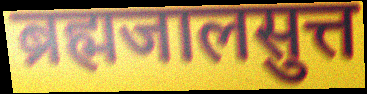
ब्रह्मजालसुत्त